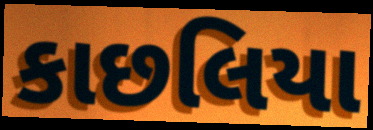
કાછલિયા